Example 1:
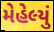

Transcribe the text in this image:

મેહેલ્યું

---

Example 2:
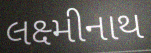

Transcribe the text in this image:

લક્ષ્મીનાથ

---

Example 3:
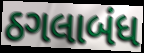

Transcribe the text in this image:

ઠગલાબંધ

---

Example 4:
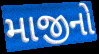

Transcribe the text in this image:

માજીનો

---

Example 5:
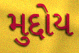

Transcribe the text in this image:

મુદ્દોય